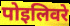
पोइलिवरे